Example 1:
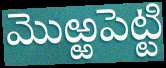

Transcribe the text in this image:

మొఱ్ఱపెట్టి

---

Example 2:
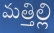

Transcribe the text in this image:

మత్తిల్లి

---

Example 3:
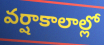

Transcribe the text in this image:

వర్షాకాలాల్లో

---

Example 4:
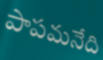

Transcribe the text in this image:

పాపమనేది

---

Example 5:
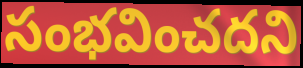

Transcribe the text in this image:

సంభవించదని